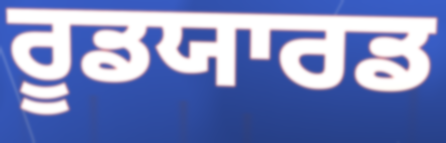
ਰੂਡਯਾਰਡ